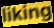
liking